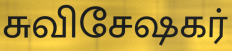
சுவிசேஷகர்